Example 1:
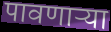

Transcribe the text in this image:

पावणाऱ्या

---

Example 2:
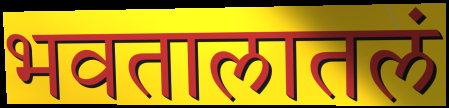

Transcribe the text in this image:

भवतालातलं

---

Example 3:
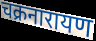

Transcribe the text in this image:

चक्रनारायण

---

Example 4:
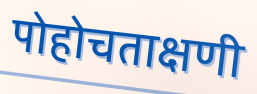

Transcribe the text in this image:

पोहोचताक्षणी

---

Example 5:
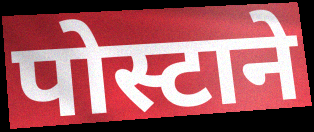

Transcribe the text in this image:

पोस्टाने